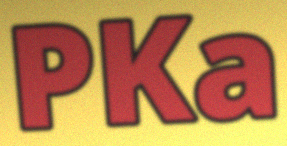
PKa